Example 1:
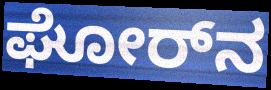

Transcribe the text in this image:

ಘೋರ್‌ನ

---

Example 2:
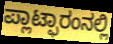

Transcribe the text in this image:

ಪ್ಲಾಟ್ಫಾರಂನಲ್ಲಿ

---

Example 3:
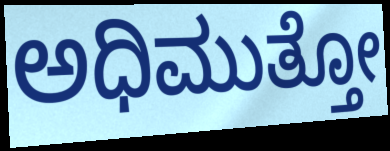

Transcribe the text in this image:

ಅಧಿಮುತ್ತೋ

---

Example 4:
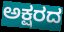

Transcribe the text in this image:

ಅಕ್ಷರದ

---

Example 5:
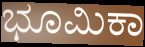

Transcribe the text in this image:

ಭೂಮಿಕಾ